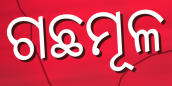
ଗଛମୂଳ